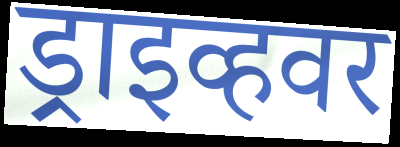
ड्राइव्हवर